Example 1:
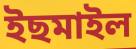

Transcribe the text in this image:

ইছমাইল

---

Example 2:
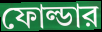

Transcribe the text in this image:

ফোল্ডার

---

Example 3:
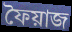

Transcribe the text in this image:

ফৈয়াজ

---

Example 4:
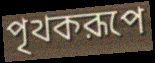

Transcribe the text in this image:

পৃথকরূপে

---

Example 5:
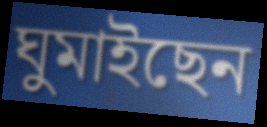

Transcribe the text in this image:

ঘুমাইছেন